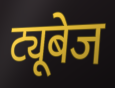
ट्यूबेज